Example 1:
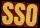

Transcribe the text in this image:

SSO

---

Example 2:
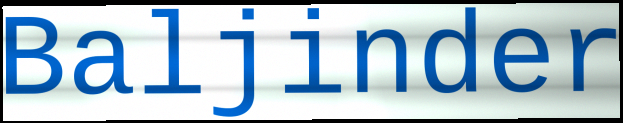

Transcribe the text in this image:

Baljinder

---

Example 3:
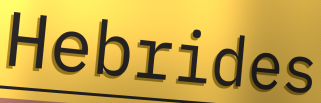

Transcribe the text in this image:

Hebrides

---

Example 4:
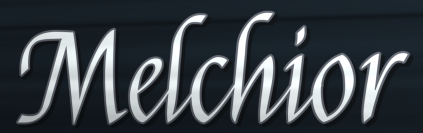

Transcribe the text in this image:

Melchior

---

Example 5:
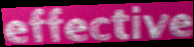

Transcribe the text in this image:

effective